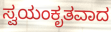
ಸ್ವಯಂಕೃತವಾದ